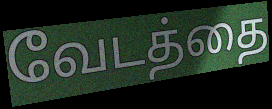
வேடத்தை